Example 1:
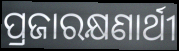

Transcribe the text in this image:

ପ୍ରଜାରକ୍ଷଣାର୍ଥୀ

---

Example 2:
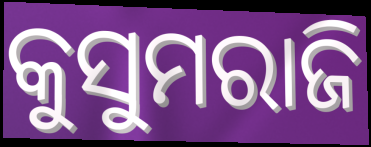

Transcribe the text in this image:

କୁସୁମରାଜି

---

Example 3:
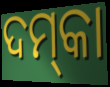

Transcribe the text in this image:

ଦମ୍‌କା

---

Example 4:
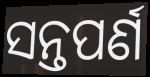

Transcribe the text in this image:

ସନ୍ତପର୍ଣ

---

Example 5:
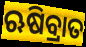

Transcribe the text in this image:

ଋଷିବ୍ରାତ